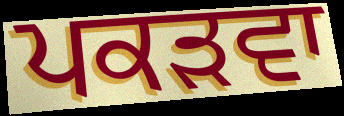
ਪਕੜਵਾ